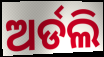
ଅର୍ଡଲି